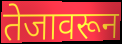
तेजावरून